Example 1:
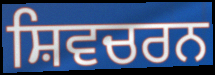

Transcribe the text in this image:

ਸ਼ਿਵਚਰਨ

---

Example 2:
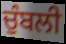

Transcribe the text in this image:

ਚੁੰਬਲੀ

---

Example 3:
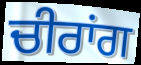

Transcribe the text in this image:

ਚੀਰਾਂਗ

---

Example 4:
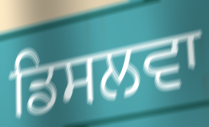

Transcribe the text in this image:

ਡਿਸਲਵਾ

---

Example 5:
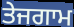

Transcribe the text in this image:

ਤੇਜਗਾਮ